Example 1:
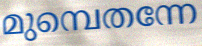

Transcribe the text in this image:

മുമ്പെതന്നേ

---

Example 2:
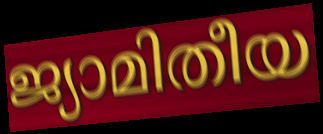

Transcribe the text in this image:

ജ്യാമിതീയ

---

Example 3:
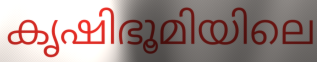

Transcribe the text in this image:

കൃഷിഭൂമിയിലെ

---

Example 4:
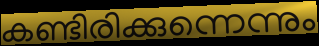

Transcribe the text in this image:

കണ്ടിരിക്കുന്നെന്നും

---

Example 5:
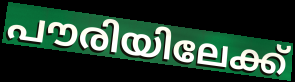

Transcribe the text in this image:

പൗരിയിലേക്ക്